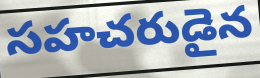
సహచరుడైన